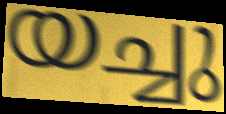
യച്ചു